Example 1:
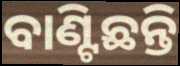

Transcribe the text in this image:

ବାଣ୍ଟିଛନ୍ତି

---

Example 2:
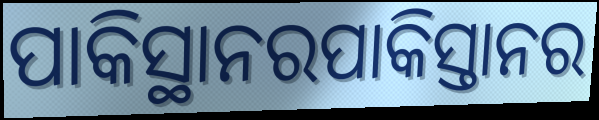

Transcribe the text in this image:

ପାକିସ୍ଥାନରପାକିସ୍ତାନର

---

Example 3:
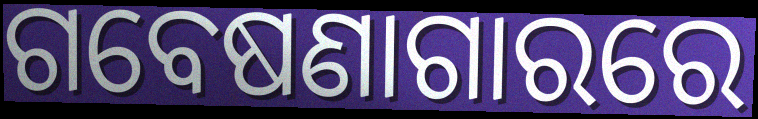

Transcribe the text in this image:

ଗବେଷଣାଗାରରେ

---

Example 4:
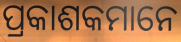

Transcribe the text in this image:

ପ୍ରକାଶକମାନେ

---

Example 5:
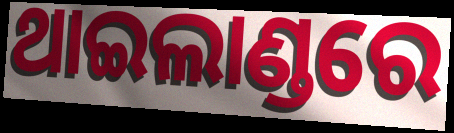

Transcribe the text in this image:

ଥାଇଲାଣ୍ଡରେ